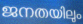
ജനതയിലും